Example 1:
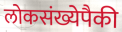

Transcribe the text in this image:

लोकसंख्येपैकी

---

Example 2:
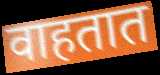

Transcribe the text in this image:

वाहतात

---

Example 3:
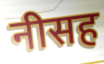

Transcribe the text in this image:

नीसह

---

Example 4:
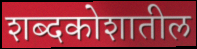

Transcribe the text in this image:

शब्दकोशातील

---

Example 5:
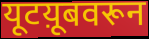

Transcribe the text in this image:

यूटय़ूबवरून